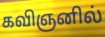
கவிஞனில்